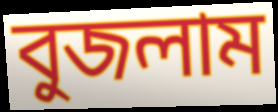
বুজলাম